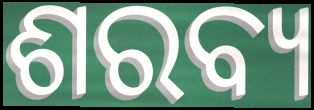
ଶରବ୍ୟ